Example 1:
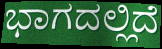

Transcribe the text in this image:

ಭಾಗದಲ್ಲಿದೆ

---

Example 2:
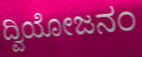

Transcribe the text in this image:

ದ್ವಿಯೋಜನಂ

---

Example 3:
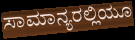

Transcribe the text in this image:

ಸಾಮಾನ್ಯರಲ್ಲಿಯೂ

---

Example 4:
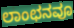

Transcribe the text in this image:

ಲಾಂಛನವೂ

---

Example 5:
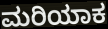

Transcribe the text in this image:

ಮರಿಯಾಕ